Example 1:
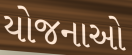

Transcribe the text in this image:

યોજનાઓ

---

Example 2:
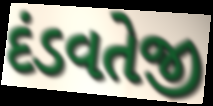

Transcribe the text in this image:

દંડવતેજી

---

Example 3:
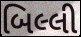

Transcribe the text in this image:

બિલ્લી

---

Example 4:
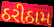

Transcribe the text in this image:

ઠરીઠામ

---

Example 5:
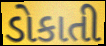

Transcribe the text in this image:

ડોકાતી